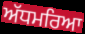
ਅੱਧਮਰਿਆ